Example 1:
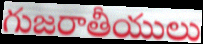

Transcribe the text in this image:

గుజరాతీయులు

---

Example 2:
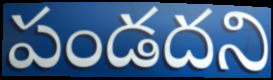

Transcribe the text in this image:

పండదని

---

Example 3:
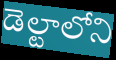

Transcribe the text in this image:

డెల్టాలోని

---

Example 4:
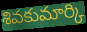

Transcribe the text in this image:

శివకుమార్కి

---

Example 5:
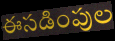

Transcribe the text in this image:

ఈసడింపుల